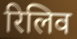
रिलिव